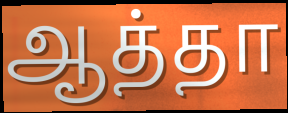
ஆத்தா